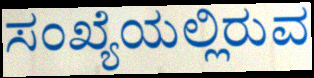
ಸಂಖ್ಯೆಯಲ್ಲಿರುವ